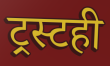
ट्रस्टही